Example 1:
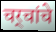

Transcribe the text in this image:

चर्चांचे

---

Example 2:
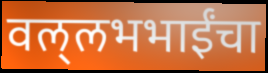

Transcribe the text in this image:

वल्लभभाईंचा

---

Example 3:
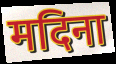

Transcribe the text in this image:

मदिना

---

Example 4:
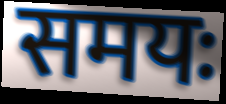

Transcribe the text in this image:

समयः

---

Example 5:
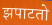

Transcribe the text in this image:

झपाटतो